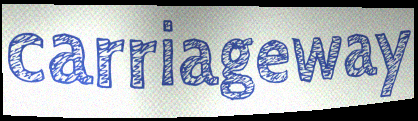
carriageway